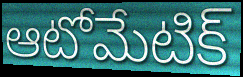
ఆటోమేటిక్